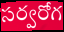
సర్వరోగ